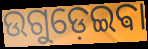
ଉଗୁଡ଼େଇଵା